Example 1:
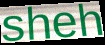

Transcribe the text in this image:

sheh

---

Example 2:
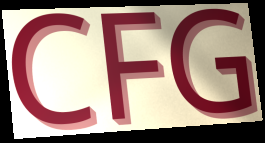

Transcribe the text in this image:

CFG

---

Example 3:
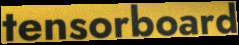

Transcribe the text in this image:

tensorboard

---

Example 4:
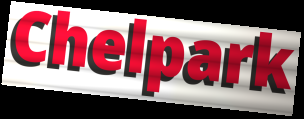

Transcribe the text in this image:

Chelpark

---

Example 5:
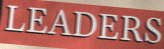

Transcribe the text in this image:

LEADERS